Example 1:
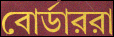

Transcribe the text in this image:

বোর্ডাররা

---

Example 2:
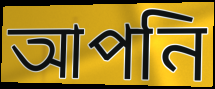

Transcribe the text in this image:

আপনি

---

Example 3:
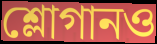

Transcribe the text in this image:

শ্লোগানও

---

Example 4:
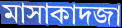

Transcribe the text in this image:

মাসাকাদজা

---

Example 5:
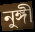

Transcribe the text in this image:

নুঙ্গী